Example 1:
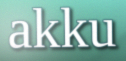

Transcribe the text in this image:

akku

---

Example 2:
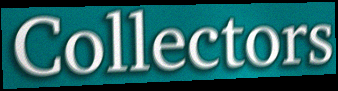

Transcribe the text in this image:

Collectors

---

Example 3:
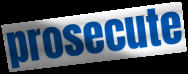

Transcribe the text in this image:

prosecute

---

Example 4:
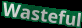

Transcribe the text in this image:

Wasteful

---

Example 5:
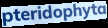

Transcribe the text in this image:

pteridophyta